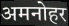
अमनोहर